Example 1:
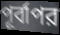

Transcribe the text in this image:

পূর্বাপর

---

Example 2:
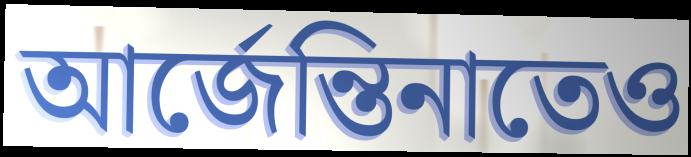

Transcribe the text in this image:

আর্জেন্তিনাতেও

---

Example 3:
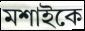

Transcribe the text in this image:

মশাইকে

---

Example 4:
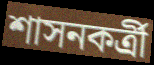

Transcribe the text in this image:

শাসনকর্ত্রী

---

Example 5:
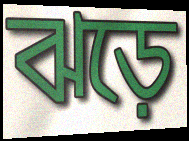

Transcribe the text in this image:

ঝড়ে